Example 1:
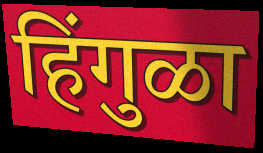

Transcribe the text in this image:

हिंगुळा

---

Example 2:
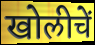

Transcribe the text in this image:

खोलीचें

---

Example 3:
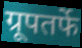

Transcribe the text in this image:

ग्रूपतर्फे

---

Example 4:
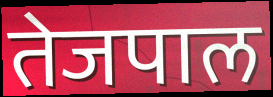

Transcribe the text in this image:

तेजपाल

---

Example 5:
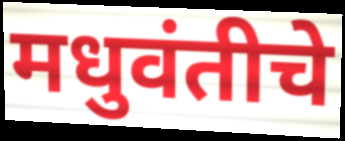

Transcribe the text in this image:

मधुवंतीचे